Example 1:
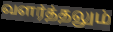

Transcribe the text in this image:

வளர்த்தலும்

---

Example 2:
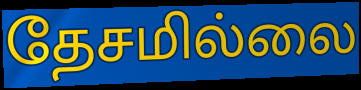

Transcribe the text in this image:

தேசமில்லை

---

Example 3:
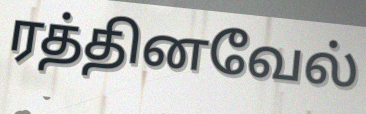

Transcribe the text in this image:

ரத்தினவேல்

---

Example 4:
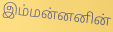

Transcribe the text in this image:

இம்மன்னனின்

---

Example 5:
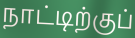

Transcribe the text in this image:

நாட்டிற்குப்